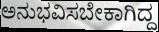
ಅನುಭವಿಸಬೇಕಾಗಿದ್ದ